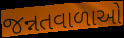
જન્નતવાળાઓ